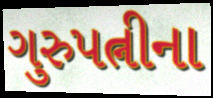
ગુરુપત્નીના